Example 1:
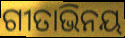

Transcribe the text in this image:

ଗୀତାଭିନୟ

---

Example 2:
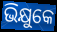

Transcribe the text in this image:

ଭିକ୍ଷୁକେ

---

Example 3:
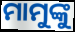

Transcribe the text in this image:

ମାମୁଙ୍କୁ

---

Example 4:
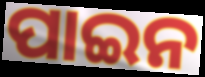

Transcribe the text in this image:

ପାଇନ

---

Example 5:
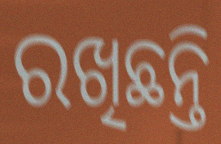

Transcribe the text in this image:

ରଖିଛନ୍ତି